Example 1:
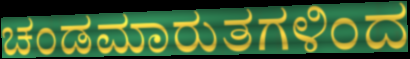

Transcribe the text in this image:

ಚಂಡಮಾರುತಗಳಿಂದ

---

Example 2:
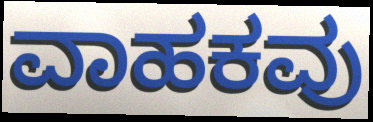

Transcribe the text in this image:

ವಾಹಕವು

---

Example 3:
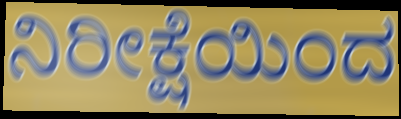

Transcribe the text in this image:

ನಿರೀಕ್ಷೆಯಿಂದ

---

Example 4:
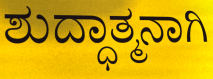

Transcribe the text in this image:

ಶುದ್ಧಾತ್ಮನಾಗಿ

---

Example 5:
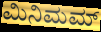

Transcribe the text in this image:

ಮಿನಿಮಮ್